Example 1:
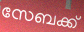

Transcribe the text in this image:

സേബക്ക്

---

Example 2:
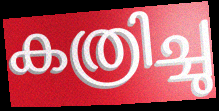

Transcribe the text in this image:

കത്രിച്ചു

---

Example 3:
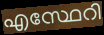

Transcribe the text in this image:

എസ്ഥേറി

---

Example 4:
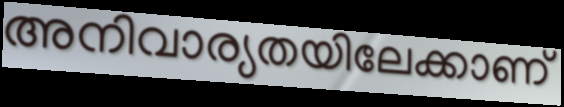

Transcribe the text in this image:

അനിവാര്യതയിലേക്കാണ്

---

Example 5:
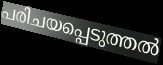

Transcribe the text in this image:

പരിചയപ്പെടുത്തൽ